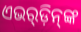
ଏଭର୍‍ଡ଼ିନ୍‌ଙ୍କ